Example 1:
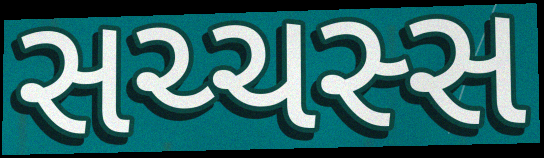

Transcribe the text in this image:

સચ્ચસ્સ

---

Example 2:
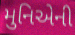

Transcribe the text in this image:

મુનિએની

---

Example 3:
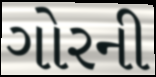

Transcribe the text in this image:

ગોરની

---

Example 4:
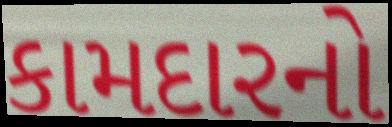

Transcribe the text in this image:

કામદારનો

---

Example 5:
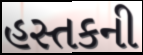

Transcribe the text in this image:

હસ્તકની